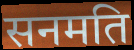
सनमति